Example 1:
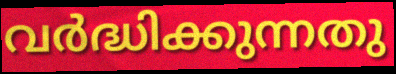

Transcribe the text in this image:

വർദ്ധിക്കുന്നതു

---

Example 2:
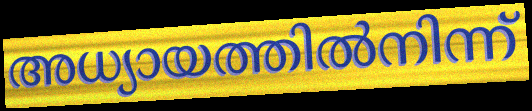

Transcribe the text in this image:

അധ്യായത്തിൽനിന്ന്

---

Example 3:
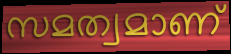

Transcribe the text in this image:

സമത്വമാണ്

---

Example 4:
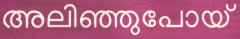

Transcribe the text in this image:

അലിഞ്ഞുപോയ്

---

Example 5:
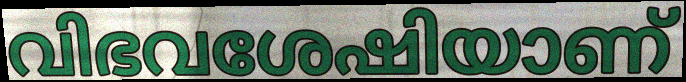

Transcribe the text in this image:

വിഭവശേഷിയാണ്